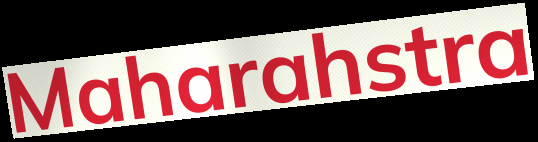
Maharahstra